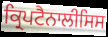
ਕ੍ਰਿਪਟੈਨਾਲੀਸਿਸ